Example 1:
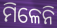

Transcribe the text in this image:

ମିଳେନି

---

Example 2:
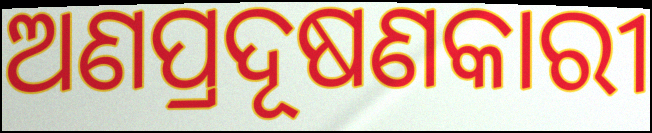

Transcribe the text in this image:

ଅଣପ୍ରଦୂଷଣକାରୀ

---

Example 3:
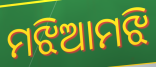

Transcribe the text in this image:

ମଝିଆମଝି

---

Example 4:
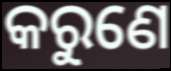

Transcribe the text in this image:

କରୁଣେ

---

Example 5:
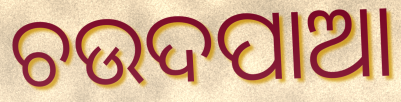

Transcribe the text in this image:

ଚଉଦପାଆ